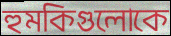
হুমকিগুলোকে